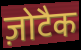
ज़ोटैक